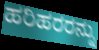
ಹರಿಹರರನ್ನು